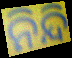
ନିନ୍ଦି